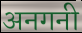
अनगनी